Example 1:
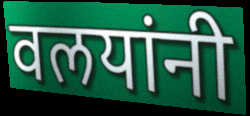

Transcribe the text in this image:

वलयांनी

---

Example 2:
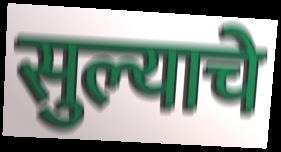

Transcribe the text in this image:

सुल्याचे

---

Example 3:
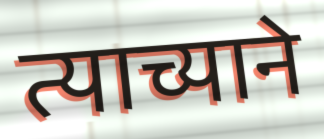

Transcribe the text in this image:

त्याच्याने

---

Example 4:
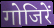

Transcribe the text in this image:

गोजिरें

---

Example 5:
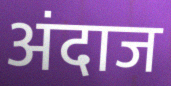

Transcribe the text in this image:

अंदाज